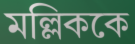
মল্লিককে